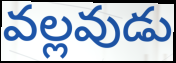
వల్లవుడు